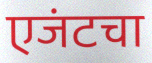
एजंटचा